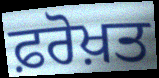
ਫ਼ਰੋਖ਼ਤ